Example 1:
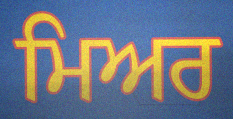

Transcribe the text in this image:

ਮਿਅਰ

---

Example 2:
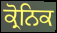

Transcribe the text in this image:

ਕ੍ਰੋਨਿਕ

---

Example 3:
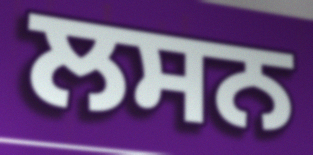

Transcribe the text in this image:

ਲਸਨ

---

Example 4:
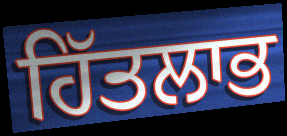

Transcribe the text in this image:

ਹਿੱਤਲਾਭ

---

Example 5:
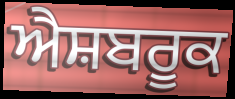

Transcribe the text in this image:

ਐਸ਼ਬਰੂਕ